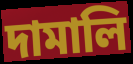
দামালি